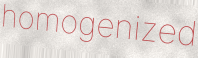
homogenized